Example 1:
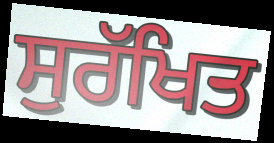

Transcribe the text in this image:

ਸੁਰੱਖਿਤ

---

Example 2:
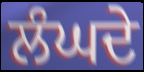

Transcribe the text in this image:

ਲੰਘਦੇ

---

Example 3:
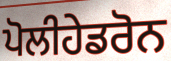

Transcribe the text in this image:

ਪੋਲੀਹੇਡਰੋਨ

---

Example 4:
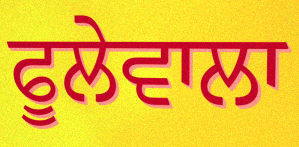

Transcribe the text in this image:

ਫੂਲੇਵਾਲਾ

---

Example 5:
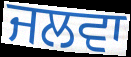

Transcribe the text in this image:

ਜਲਵਾ